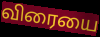
விரையை